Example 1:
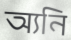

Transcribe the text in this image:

অ্যনি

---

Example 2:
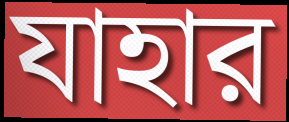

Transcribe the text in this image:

যাহার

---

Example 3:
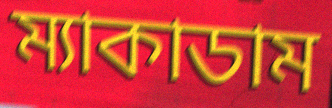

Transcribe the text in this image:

ম্যাকাডাম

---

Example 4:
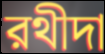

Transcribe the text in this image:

রথীদা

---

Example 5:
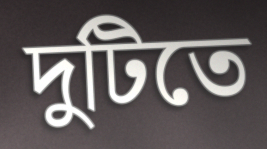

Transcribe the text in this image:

দুটিতে